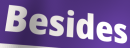
Besides